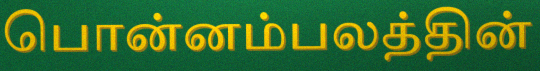
பொன்னம்பலத்தின்